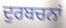
ਦੁਰਬਚਨਾਂ